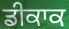
ਡੀਕਾਕ